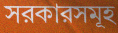
সরকারসমূহ